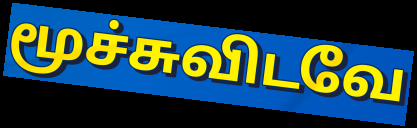
மூச்சுவிடவே